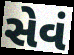
સેવં